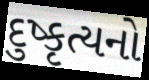
દુષ્કૃત્યનો